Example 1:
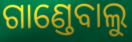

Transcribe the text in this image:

ଗାଣ୍ଡେବାଲୁ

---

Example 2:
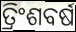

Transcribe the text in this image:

ତ୍ରିଂଶବର୍ଷ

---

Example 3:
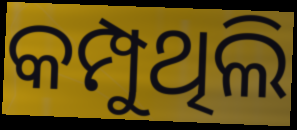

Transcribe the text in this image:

କମ୍ପୁଥିଲି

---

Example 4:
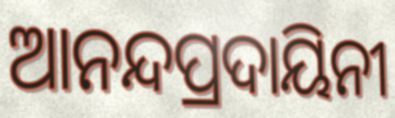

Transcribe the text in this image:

ଆନନ୍ଦପ୍ରଦାୟିନୀ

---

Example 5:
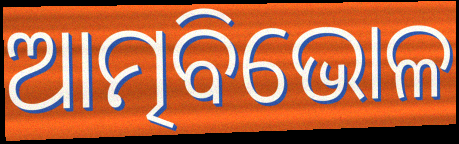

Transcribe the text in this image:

ଆତ୍ମବିଭୋଳ